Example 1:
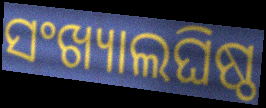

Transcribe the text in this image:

ସଂଖ୍ୟାଲଘିଷ୍ଠ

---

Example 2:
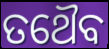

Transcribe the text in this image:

ତଥୈବ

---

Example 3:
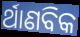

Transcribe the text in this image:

ର୍ଥାଣବିକ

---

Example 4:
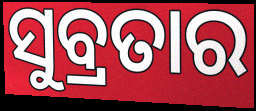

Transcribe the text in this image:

ସୁବ୍ରତାର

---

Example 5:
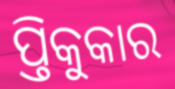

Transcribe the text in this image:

ପ୍ତିକୁକାର